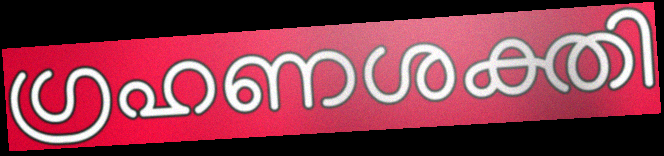
ഗ്രഹണശക്തി